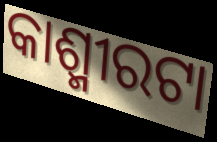
କାଶ୍ମୀରଟା